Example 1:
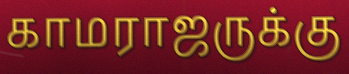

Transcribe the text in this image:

காமராஜருக்கு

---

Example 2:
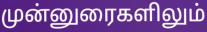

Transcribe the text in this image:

முன்னுரைகளிலும்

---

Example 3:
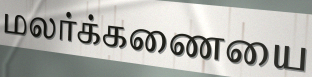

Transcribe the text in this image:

மலர்க்கணையை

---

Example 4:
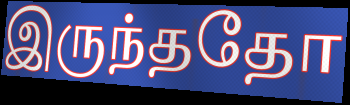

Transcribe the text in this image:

இருந்ததோ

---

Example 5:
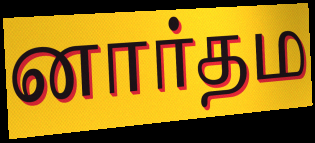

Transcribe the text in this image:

னார்தம